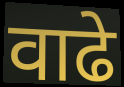
वाढे